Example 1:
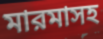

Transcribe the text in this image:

মারমাসহ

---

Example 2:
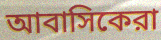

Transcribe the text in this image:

আবাসিকেরা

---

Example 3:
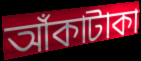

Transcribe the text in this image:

আঁকাটাকা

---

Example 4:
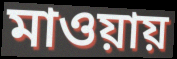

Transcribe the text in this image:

মাওয়ায়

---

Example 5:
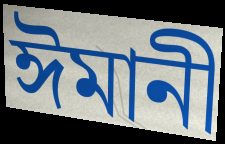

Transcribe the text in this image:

ঈমানী